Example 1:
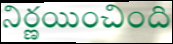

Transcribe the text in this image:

నిర్ణయించింది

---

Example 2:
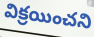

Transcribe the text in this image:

విక్రయించని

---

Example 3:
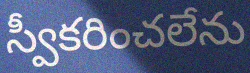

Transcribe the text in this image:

స్వీకరించలేను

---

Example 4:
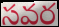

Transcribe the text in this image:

సవర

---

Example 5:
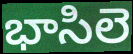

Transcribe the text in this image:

భాసిలె